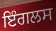
ਇੰਗਲਸ